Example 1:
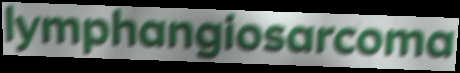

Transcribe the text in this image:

lymphangiosarcoma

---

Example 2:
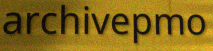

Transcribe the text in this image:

archivepmo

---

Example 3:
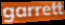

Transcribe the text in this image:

garrett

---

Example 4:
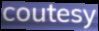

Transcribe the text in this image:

coutesy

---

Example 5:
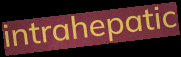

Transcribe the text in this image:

intrahepatic